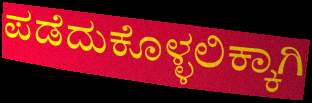
ಪಡೆದುಕೊಳ್ಳಲಿಕ್ಕಾಗಿ